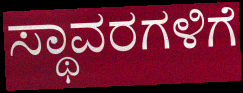
ಸ್ಥಾವರಗಳಿಗೆ